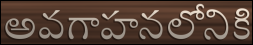
అవగాహనలోనికి